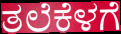
ತಲೆಕೆಳಗೆ